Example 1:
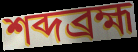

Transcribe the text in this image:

শব্দব্রহ্ম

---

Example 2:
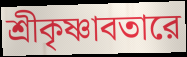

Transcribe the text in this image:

শ্রীকৃষ্ণাবতারে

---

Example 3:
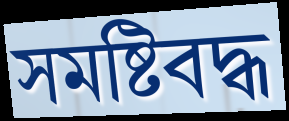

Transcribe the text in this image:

সমষ্টিবদ্ধ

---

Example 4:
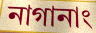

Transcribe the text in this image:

নাগানাং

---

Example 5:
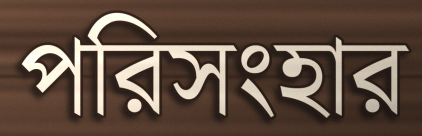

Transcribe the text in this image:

পরিসংহার